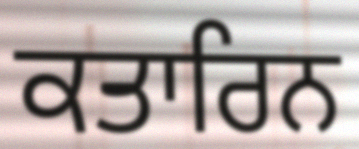
ਕਤਾਰਿਨ